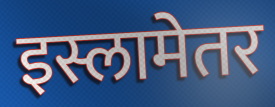
इस्लामेतर